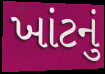
ખાંટનું